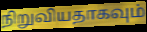
நிறுவியதாகவும்